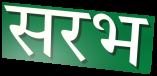
सरभ